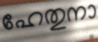
ഹേതുനാ